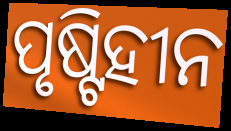
ପୃଷ୍ଟିହୀନ